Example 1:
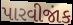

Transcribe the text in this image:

પારવીજાંક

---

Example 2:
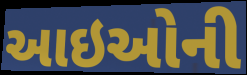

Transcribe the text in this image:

આઇઓની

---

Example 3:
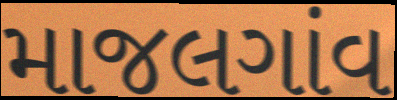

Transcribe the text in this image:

માજલગાંવ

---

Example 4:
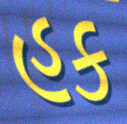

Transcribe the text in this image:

હક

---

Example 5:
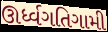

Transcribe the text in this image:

ઊર્ધ્વગતિગામી